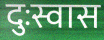
दुःस्वास